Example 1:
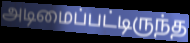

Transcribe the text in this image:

அடிமைப்பட்டிருந்த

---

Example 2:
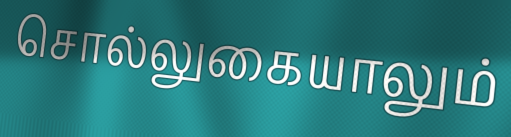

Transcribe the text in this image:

சொல்லுகையாலும்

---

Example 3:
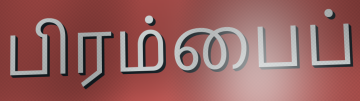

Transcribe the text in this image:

பிரம்பைப்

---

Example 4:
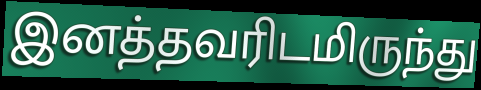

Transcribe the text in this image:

இனத்தவரிடமிருந்து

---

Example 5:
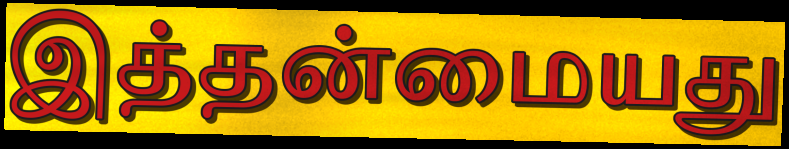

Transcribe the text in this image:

இத்தன்மையது